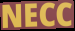
NECC